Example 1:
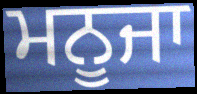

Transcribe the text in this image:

ਮਨੂਜਾ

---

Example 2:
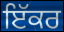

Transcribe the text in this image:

ਇੱਕਰ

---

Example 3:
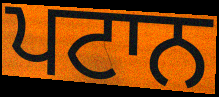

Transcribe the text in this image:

ਪਟਾਨ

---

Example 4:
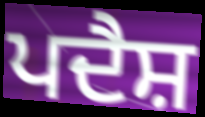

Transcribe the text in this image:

ਪਦੈਸ਼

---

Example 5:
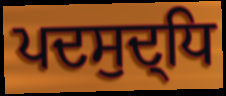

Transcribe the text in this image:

ਪਦਸੁਦ੍ਧਿ